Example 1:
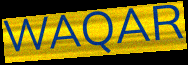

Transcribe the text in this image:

WAQAR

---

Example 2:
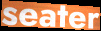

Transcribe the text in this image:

seater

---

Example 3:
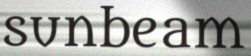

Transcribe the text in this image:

sunbeam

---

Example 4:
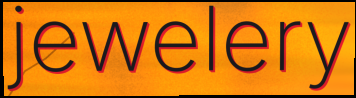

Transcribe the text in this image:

jewelery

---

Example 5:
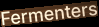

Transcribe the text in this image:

Fermenters